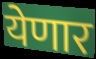
येणार